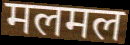
मलमल